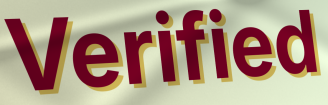
Verified